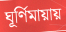
ঘূর্ণিমায়ায়